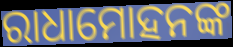
ରାଧାମୋହନଙ୍କ